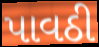
પાવઠી